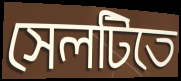
সেলটিতে